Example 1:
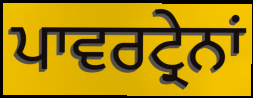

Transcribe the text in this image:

ਪਾਵਰਟ੍ਰੇਨਾਂ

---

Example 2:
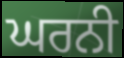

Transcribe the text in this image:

ਘਰਨੀ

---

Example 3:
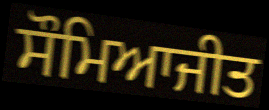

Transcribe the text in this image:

ਸੌਮਿਆਜੀਤ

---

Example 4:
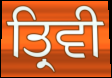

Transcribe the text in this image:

ਤ੍ਰਿਵੀ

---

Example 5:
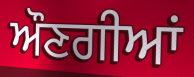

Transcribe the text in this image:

ਔਣਗੀਆਂ